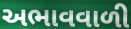
અભાવવાળી